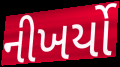
નીખર્યો